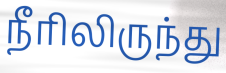
நீரிலிருந்து